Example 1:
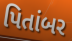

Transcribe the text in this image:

પિતાંબર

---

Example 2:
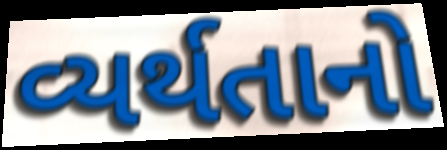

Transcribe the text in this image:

વ્યર્થતાનો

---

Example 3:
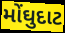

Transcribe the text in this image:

મોંઘુદાટ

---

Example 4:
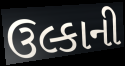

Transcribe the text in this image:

ઉલ્કાની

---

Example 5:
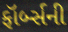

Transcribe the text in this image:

ફૉર્બ્સની